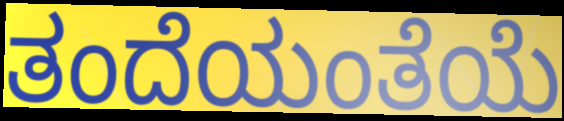
ತಂದೆಯಂತೆಯೆ